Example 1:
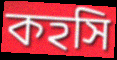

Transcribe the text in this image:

কহসি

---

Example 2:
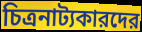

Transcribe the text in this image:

চিত্রনাট্যকারদের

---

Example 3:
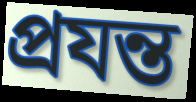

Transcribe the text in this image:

প্রযন্ত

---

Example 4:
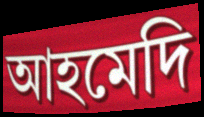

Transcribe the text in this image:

আহমেদি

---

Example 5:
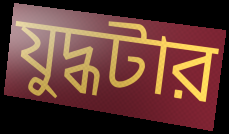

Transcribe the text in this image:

যুদ্ধটার